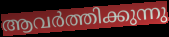
ആവർത്തിക്കുന്നു